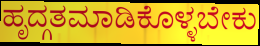
ಹೃದ್ಗತಮಾಡಿಕೊಳ್ಳಬೇಕು